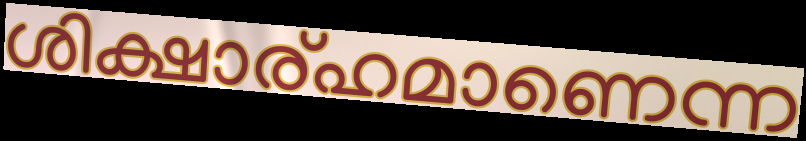
ശിക്ഷാര്ഹമാണെന്ന